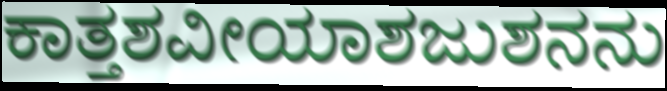
ಕಾತ್ತಶವೀಯಾಶಜುಶನನು